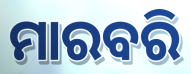
ମାରବରି